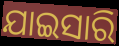
ଯାଇସାରି